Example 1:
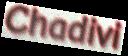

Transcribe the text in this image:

Chadivi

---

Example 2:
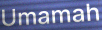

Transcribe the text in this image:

Umamah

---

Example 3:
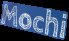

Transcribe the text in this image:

Mochi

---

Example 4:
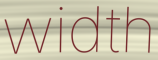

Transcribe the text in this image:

width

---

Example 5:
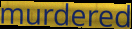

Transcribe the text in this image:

murdered